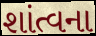
શાંત્વના